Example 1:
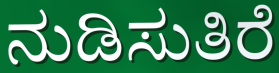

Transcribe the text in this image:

ನುಡಿಸುತಿರೆ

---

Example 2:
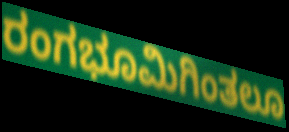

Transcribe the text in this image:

ರಂಗಭೂಮಿಗಿಂತಲೂ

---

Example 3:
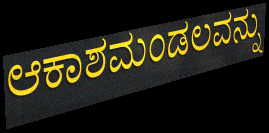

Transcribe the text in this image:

ಆಕಾಶಮಂಡಲವನ್ನು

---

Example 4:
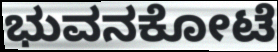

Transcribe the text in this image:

ಭುವನಕೋಟೆ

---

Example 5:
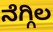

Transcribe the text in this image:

ನೆಗ್ಗಿಲ